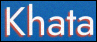
Khata